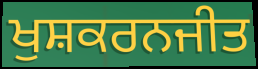
ਖੁਸ਼ਕਰਨਜੀਤ